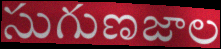
సుగుణజాల